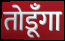
तोडूँगा